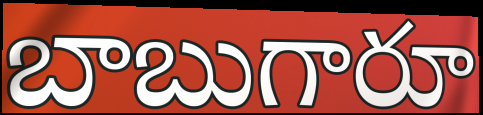
బాబుగారూ